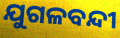
ଯୁଗଳବନ୍ଦୀ